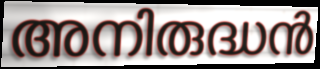
അനിരുദ്ധൻ